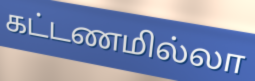
கட்டணமில்லா